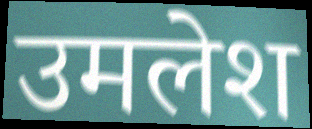
उमलेश